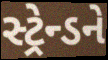
સ્ટ્રેન્ડને